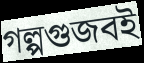
গল্পগুজবই